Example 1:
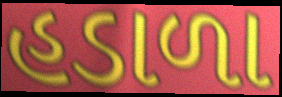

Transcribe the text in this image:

હડાળા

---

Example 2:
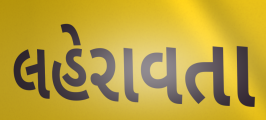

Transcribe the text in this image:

લહેરાવતા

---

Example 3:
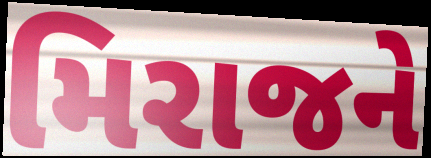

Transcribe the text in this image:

મિરાજને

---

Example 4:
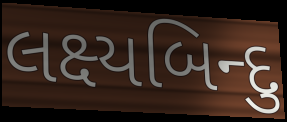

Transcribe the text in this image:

લક્ષ્યબિન્દુ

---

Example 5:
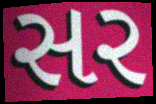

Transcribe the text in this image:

સર